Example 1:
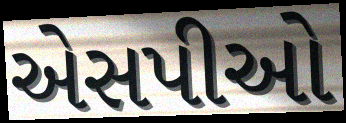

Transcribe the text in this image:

એસપીઓ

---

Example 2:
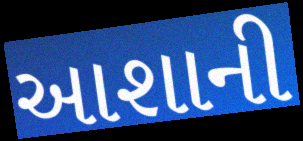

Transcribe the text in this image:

આશાની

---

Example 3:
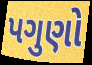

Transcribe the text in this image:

પગુણો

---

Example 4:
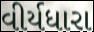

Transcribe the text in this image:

વીર્યધારા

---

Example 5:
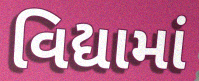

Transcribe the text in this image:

વિદ્યામાં